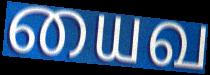
யைவ